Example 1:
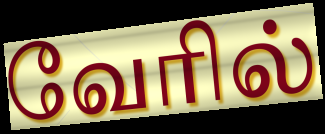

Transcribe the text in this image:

வேரில்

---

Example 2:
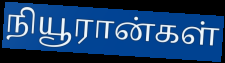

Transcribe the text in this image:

நியூரான்கள்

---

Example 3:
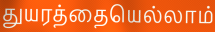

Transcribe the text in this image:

துயரத்தையெல்லாம்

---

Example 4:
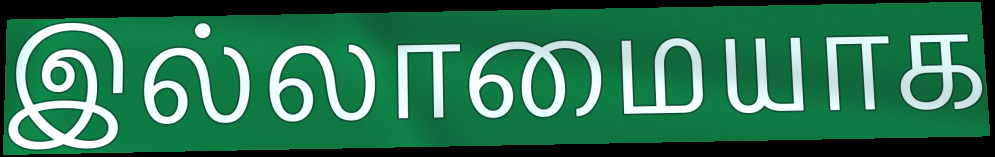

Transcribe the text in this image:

இல்லாமையாக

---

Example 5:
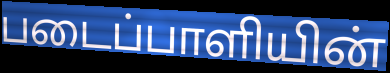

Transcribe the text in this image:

படைப்பாளியின்